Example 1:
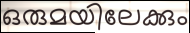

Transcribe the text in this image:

ഒരുമയിലേക്കും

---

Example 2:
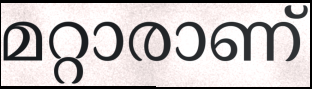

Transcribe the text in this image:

മറ്റാരാണ്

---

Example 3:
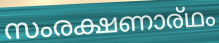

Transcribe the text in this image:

സംരക്ഷണാര്ഥം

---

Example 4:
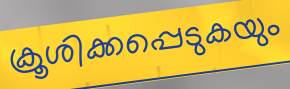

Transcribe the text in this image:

ക്രൂശിക്കപ്പെടുകയും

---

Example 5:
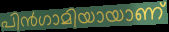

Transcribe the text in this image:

പിൻഗാമിയായാണ്